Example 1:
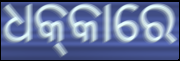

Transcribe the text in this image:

ଧକ୍‌କାରେ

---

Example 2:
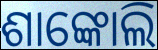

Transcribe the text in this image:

ଶାଙ୍କୋଲି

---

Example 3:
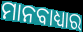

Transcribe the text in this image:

ମାନବାଧ୍ୟାର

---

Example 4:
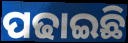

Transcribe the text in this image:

ପଢାଇଛି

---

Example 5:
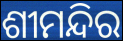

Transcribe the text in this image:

ଶୀମନ୍ଦିର